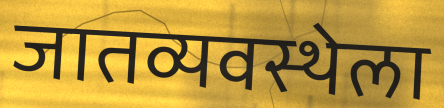
जातव्यवस्थेला